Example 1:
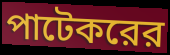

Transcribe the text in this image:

পাটেকরের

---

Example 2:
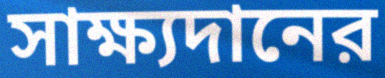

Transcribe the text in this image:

সাক্ষ্যদানের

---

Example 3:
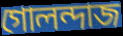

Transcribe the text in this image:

গোলন্দাজ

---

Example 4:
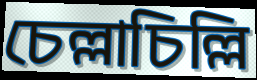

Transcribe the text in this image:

চেল্লাচিল্লি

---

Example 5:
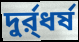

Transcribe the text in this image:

দুর্র্ধর্ষ